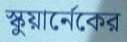
স্কুয়ার্নেকের